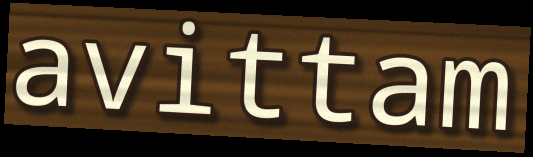
avittam